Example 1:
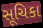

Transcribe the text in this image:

સૂચિકા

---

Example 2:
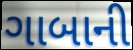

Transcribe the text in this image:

ગાબાની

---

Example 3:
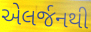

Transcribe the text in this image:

એલર્જનથી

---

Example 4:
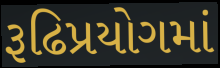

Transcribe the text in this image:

રૂઢિપ્રયોગમાં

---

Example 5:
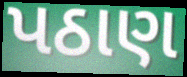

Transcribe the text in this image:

પઠાણ